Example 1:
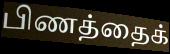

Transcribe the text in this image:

பிணத்தைக்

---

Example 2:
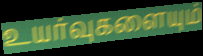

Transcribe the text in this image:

உயர்வுகளையும்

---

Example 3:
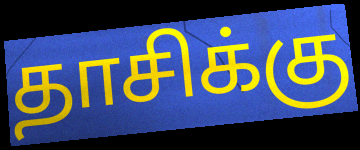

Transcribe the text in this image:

தாசிக்கு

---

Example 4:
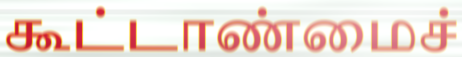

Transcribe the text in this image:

கூட்டாண்மைச்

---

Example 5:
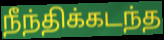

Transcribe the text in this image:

நீந்திக்கடந்த